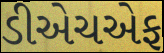
ડીએચએફ